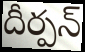
దీర్పన్